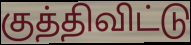
குத்திவிட்டு